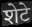
शेटे